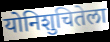
योनिशुचितेला